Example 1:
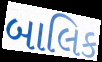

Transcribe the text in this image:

બાલિક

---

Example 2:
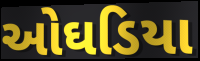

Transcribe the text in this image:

ઓઘડિયા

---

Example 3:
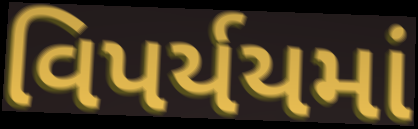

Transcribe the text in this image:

વિપર્યયમાં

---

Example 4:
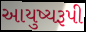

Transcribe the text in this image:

આયુષ્યરૂપી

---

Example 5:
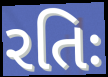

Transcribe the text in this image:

રતિઃ